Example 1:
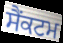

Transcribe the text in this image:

ਸੈੰਕਟਮ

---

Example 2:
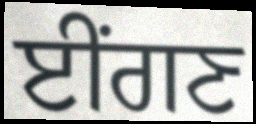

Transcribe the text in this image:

ਈਂਗਣ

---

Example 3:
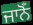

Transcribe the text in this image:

ਜਾਨੋਁ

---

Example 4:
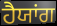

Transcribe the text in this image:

ਹੈਯਾਂਗ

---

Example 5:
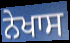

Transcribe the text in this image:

ਨੇਖਾਸ